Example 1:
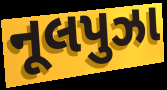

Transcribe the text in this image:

નૂલપુઝા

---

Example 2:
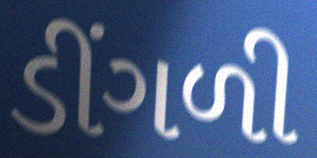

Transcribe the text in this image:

ડીંગળી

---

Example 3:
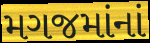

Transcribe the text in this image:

મગજમાંનાં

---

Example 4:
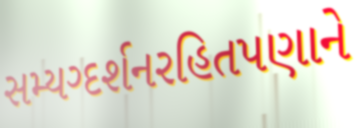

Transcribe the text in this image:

સમ્યગ્દર્શનરહિતપણાને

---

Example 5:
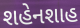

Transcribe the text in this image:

શહેનશાહ